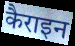
कैराइन